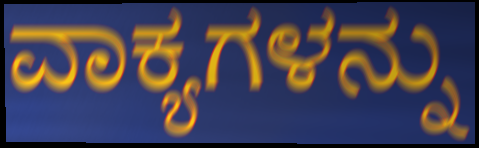
ವಾಕ್ಯಗಳನ್ನು